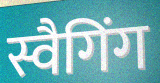
स्वैगिंग